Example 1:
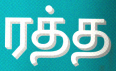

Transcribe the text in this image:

ரத்த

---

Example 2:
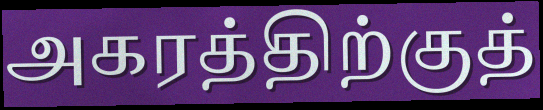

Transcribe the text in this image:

அகரத்திற்குத்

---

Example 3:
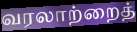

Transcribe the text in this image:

வரலாற்றைத்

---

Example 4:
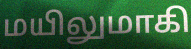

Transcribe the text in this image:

மயிலுமாகி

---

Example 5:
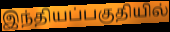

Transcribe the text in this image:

இந்தியப்பகுதியில்